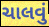
ચાલવું